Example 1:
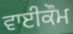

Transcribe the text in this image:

ਵਾਈਕੌਮ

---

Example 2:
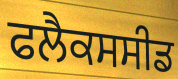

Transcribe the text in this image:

ਫਲੈਕਸਸੀਡ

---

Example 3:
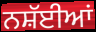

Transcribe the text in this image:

ਨਸ਼ੱਈਆਂ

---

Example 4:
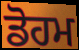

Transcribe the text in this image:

ਡੋਹਮ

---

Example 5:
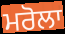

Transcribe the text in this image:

ਮਰੋਲਾ